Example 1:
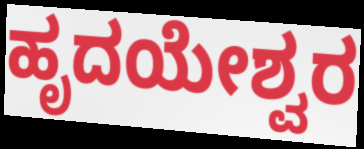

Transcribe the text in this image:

ಹೃದಯೇಶ್ವರ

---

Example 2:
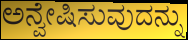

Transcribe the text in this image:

ಅನ್ವೇಷಿಸುವುದನ್ನು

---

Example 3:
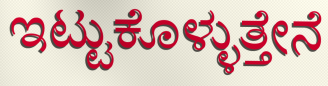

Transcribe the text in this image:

ಇಟ್ಟುಕೊಳ್ಳುತ್ತೇನೆ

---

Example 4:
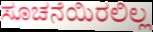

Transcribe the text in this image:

ಸೂಚನೆಯಿರಲಿಲ್ಲ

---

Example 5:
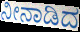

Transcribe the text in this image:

ನೀನಾಡಿದ